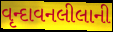
વૃન્દાવનલીલાની